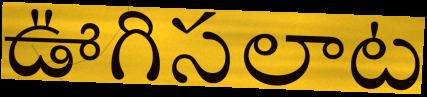
ఊగిసలాట